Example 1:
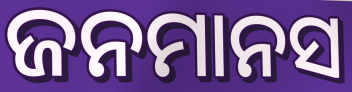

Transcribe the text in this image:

ଜନମାନସ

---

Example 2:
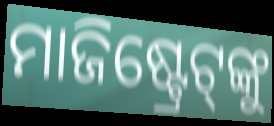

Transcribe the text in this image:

ମାଜିଷ୍ଟ୍ରେଟ୍‌ଙ୍କୁ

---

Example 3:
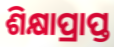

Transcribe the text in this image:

ଶିକ୍ଷାପ୍ରାପ୍ତ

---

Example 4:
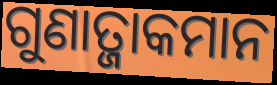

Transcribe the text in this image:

ଗୁଣାତ୍ଜାକମାନ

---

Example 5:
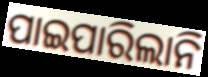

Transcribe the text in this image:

ପାଇପାରିଲାନି